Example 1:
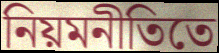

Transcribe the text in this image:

নিয়মনীতিতে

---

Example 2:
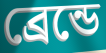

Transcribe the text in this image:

ব্রেন্ডে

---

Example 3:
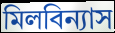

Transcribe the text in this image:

মিলবিন্যাস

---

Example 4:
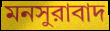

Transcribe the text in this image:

মনসুরাবাদ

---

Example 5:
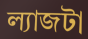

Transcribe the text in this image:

ল্যাজটা